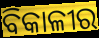
ବିକାଳୀର